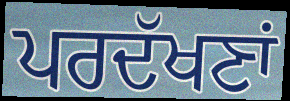
ਪਰਦੱਖਣਾਂ